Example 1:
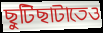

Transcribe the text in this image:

ছুটিছাটাতেও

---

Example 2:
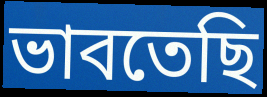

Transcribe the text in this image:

ভাবতেছি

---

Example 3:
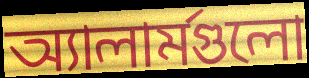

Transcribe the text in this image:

অ্যালার্মগুলো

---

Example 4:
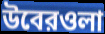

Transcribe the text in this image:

উবেরওলা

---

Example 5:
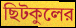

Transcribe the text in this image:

ছিটকুলের